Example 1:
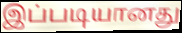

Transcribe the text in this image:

இப்படியானது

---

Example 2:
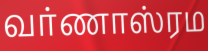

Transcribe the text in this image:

வர்ணாஸ்ரம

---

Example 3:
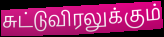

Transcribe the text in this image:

சுட்டுவிரலுக்கும்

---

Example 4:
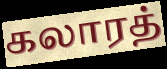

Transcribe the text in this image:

கலாரத்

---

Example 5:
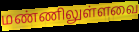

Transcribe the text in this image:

மண்ணிலுள்ளவை